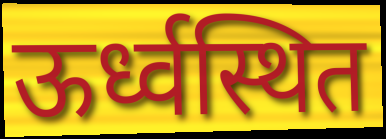
ऊर्ध्वस्थित